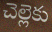
చెల్లెకు